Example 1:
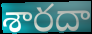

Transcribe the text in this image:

శారదా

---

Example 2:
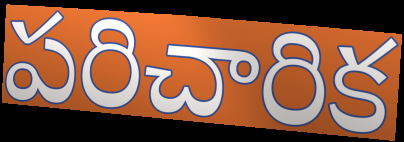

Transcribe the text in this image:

పరిచారిక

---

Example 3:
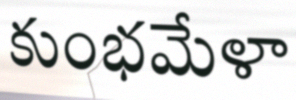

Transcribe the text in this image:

కుంభమేళా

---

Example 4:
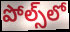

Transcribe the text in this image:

పోల్స్‌లో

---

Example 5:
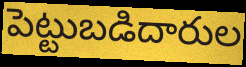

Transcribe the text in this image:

పెట్టుబడిదారుల